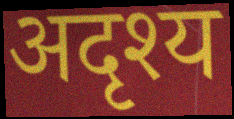
अदृश्य